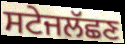
ਸਟੇਜਲੱਛਣ